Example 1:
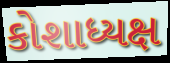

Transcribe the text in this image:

કોશાધ્યક્ષ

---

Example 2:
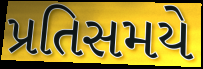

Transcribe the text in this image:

પ્રતિસમયે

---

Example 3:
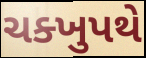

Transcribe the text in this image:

ચક્ખુપથે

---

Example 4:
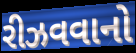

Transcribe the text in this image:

રીઝવવાનો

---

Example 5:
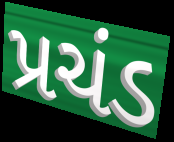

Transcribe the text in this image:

પ્રચંડ